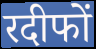
रदीफों